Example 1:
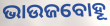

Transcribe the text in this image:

ଭାଉଜବୋହୂ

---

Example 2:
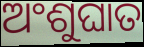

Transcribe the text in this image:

ଅଂଶୁଘାତ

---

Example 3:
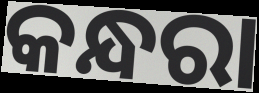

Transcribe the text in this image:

କନ୍ଧରା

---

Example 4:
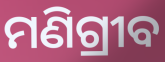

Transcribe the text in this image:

ମଣିଗ୍ରୀବ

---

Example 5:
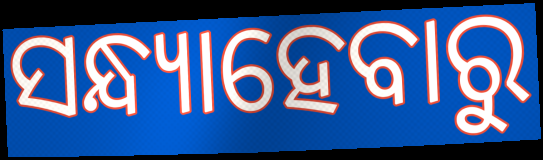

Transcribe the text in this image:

ସନ୍ଧ୍ୟାହେବାରୁ